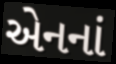
એનનાં